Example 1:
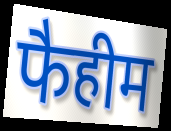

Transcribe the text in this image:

फैहीम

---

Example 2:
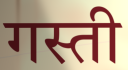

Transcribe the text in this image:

गस्ती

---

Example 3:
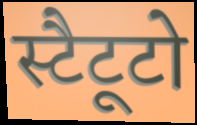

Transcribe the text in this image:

स्टैटूटो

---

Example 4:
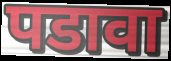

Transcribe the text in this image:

पडावा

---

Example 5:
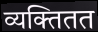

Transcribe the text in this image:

व्यक्तितत